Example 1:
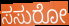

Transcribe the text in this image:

ಸಸುರೋ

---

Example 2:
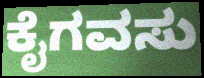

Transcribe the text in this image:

ಕೈಗವಸು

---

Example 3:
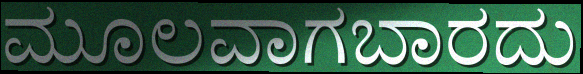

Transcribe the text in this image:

ಮೂಲವಾಗಬಾರದು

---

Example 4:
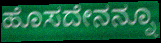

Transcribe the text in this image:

ಹೊಸದೇನನ್ನೂ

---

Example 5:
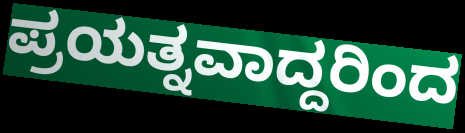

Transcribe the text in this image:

ಪ್ರಯತ್ನವಾದ್ದರಿಂದ